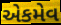
એકમેવ